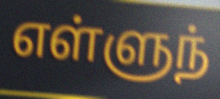
எள்ளுந்